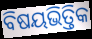
ବିଷୟଭିତ୍ତିକ